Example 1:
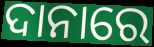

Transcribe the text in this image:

ଦାନାରେ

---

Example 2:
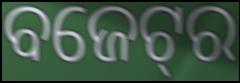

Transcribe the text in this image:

ବଜେଟ୍‌ର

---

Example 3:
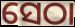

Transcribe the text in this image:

ସେଠା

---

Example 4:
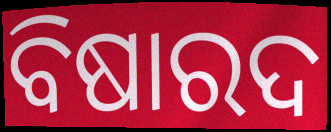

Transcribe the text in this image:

ବିଷାରଦ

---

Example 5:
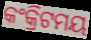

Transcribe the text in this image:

କଂକ୍ରିଟମୟ